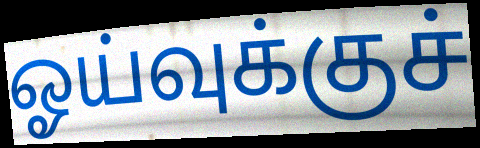
ஓய்வுக்குச்